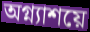
অগ্ন্যাশয়ে